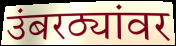
उंबरठ्यांवर